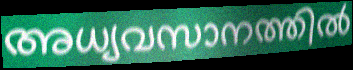
അധ്യവസാനത്തിൽ